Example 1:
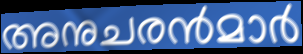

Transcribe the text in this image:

അനുചരൻമാർ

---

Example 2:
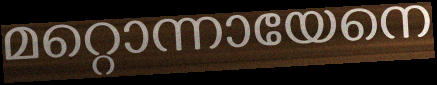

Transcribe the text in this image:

മറ്റൊന്നായേനെ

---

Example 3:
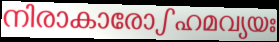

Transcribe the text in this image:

നിരാകാരോഽഹമവ്യയഃ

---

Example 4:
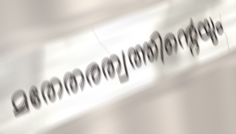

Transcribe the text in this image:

മതേതരത്വത്തിന്റെയും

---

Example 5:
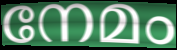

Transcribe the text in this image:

നേമം